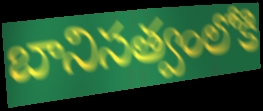
బానిసత్వంలోకి